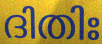
ദിതിഃ